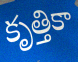
కృత్తికా